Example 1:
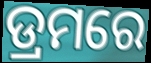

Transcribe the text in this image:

ଡ୍ରମରେ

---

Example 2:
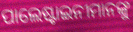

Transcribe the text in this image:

ପାଲେଷ୍ଟାଇନୀମାନଙ୍କୁ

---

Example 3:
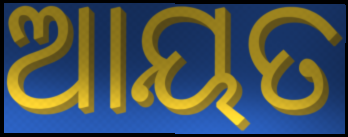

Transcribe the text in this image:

ଆୟତ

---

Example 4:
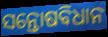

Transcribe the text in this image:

ସନ୍ତୋଷବିଧାନ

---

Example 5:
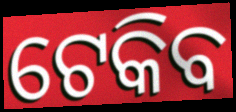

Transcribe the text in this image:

ଟେକିବ